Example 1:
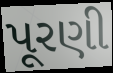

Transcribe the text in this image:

પૂરણી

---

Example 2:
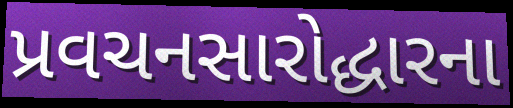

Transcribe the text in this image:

પ્રવચનસારોદ્ધારના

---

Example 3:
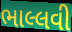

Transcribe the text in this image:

ભાલ્લવી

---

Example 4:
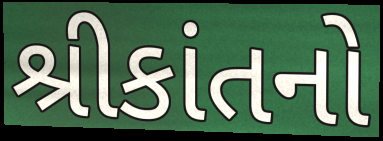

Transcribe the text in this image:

શ્રીકાંતનો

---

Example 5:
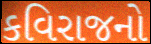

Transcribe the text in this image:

કવિરાજનો